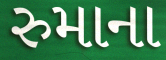
રુમાના